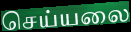
செய்யலை